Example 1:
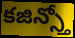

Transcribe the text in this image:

కజిన్స్తో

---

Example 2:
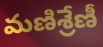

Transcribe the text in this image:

మణిశ్రేణీ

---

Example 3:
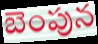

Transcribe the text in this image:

బెంపున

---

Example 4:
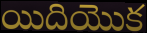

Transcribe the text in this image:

యిదియొక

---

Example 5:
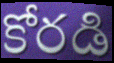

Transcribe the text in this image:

కోరడి